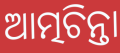
ଆତ୍ମଚିନ୍ତା